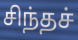
சிந்தச்